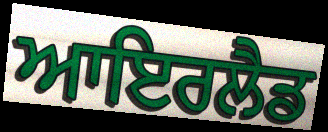
ਆਇਰਲੈਡ